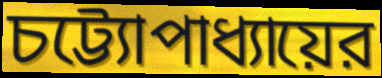
চট্ট্যোপাধ্যায়ের